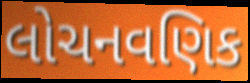
લોચનવણિક